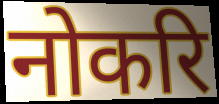
नोकरि